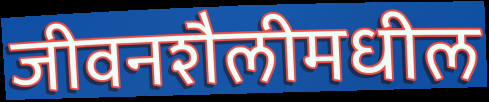
जीवनशैलीमधील